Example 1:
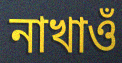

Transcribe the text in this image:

নাখাওঁ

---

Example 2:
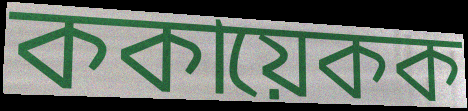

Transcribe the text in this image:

ককায়েকক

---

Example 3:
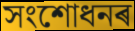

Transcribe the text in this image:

সংশোধনৰ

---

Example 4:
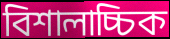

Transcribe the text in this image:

বিশালাচ্চিক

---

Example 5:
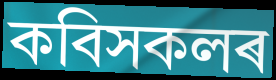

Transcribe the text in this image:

কবিসকলৰ